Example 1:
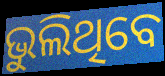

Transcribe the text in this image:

ଭୁଲିଥିବେ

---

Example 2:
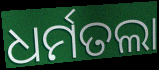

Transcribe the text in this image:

ଧର୍ମତଲା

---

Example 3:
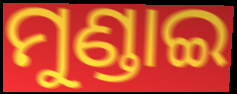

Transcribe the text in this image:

ମୁଣ୍ଡାଇ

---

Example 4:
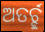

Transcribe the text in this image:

ଅତର୍ଚ୍ଛ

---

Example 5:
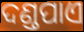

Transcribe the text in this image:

ଦଣ୍ଡପାଏ